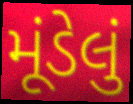
મૂંડેલું